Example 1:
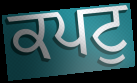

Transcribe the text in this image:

ਕਪਟੁ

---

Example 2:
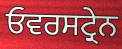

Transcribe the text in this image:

ਓਵਰਸਟ੍ਰੇਨ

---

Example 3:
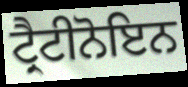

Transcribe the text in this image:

ਟ੍ਰੈਟੀਨੋਇਨ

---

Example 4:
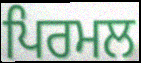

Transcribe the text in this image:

ਪਿਰਮਲ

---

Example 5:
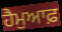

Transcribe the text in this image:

ਹੈਮੁਆਫ਼